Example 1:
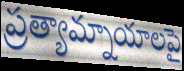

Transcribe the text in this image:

ప్రత్యామ్నాయాలపై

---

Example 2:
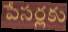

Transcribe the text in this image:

పేసర్లకు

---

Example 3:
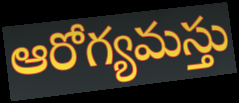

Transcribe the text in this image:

ఆరోగ్యమస్తు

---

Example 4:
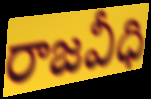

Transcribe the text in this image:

రాజవీధి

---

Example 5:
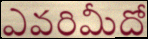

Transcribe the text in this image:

ఎవరిమీదో